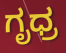
ಗೃಧ್ರ